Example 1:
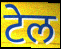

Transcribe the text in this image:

टेल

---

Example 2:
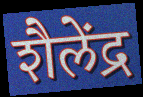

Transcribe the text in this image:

शैलेंद्र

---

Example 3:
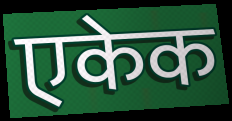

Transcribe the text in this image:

एकेक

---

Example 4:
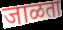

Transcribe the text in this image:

जाळता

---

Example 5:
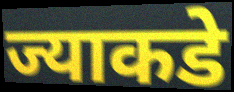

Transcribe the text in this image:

ज्याकडे